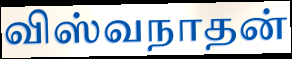
விஸ்வநாதன்